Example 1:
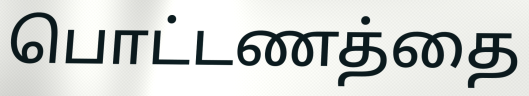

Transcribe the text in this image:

பொட்டணத்தை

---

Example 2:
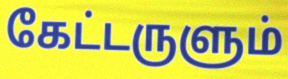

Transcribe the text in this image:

கேட்டருளும்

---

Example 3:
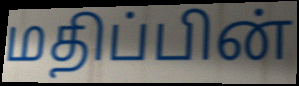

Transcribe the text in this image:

மதிப்பின்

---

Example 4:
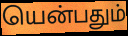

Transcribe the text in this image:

யென்பதும்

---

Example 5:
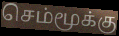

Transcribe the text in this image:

செம்மூக்கு